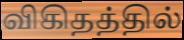
விகிதத்தில்